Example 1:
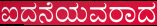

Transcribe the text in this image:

ಐದನೆಯವರಾದ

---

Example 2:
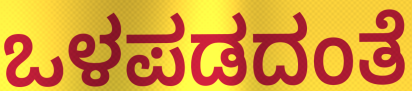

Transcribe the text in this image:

ಒಳಪಡದಂತೆ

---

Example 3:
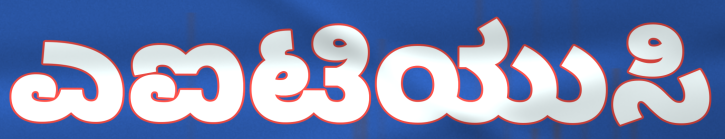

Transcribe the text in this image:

ಎಐಟಿಯುಸಿ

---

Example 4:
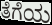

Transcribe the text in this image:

ತೆಗೆಯ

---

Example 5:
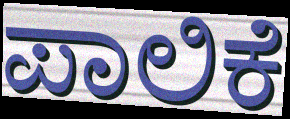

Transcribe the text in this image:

ಪಾಲಿಕೆ